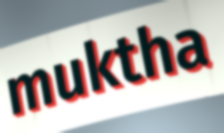
muktha